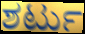
ಶರ್ಟು